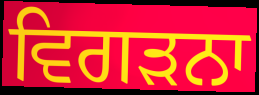
ਵਿਗੜਨਾ